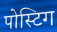
पोस्टिग